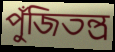
পুঁজিতন্ত্র